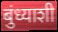
बुंध्याशी